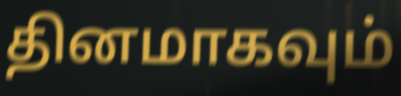
தினமாகவும்